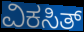
ವಿಕಸಿತ್